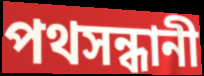
পথসন্ধানী